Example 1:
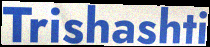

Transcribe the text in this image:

Trishashti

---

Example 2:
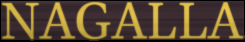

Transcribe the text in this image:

NAGALLA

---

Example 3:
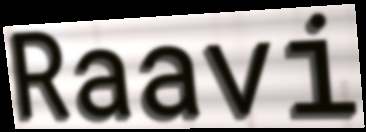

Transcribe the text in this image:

Raavi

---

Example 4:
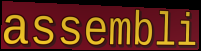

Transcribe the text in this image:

assembli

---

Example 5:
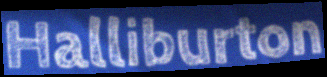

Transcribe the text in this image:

Halliburton